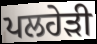
ਪਲਹੇੜੀ